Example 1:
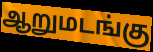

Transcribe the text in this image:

ஆறுமடங்கு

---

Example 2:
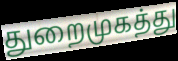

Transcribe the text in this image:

துறைமுகத்து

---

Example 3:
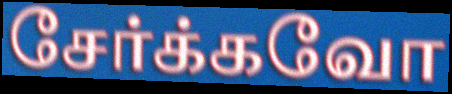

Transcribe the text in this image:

சேர்க்கவோ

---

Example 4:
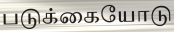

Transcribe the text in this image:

படுக்கையோடு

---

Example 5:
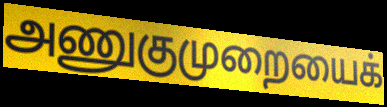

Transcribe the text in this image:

அணுகுமுறையைக்